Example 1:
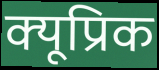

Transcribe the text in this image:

क्यूप्रिक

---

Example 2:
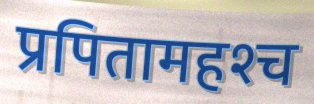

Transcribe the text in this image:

प्रपितामहश्च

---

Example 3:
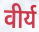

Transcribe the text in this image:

वीर्य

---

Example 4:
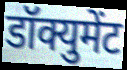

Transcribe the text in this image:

डॉक्युमेंट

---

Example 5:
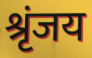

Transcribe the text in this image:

श्रृंजय